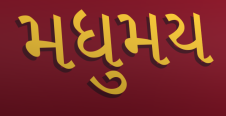
મધુમય